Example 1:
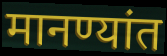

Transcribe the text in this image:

मानण्यांत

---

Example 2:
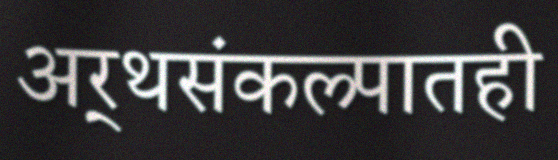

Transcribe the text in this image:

अर्थसंकल्पातही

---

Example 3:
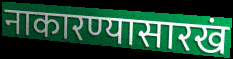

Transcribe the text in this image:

नाकारण्यासारखं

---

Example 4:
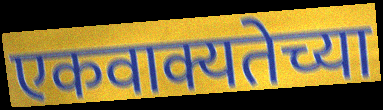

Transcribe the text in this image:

एकवाक्यतेच्या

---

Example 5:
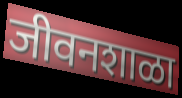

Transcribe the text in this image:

जीवनशाळा